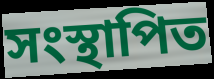
সংস্থাপিত